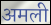
अमली